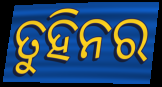
ତୁହିନର